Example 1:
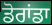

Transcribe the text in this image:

ਡੋਰਾਂਡਾ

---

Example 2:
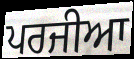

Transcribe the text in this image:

ਪਰਜੀਆ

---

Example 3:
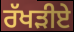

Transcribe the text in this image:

ਰੱਖੜੀਏ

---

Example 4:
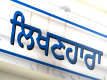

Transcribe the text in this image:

ਲਿਖਣਹਾਰਾ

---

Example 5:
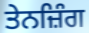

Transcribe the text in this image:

ਤੇਨਜ਼ਿੰਗ